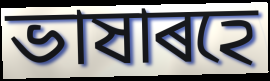
ভাষাৰহে